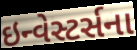
ઇન્વેસ્ટર્સના